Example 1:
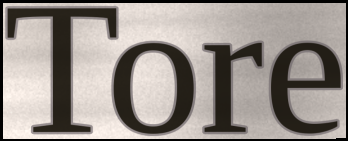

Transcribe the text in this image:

Tore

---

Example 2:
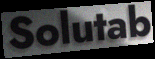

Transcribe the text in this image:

Solutab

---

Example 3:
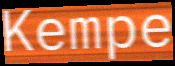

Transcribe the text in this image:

Kempe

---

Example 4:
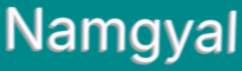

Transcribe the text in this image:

Namgyal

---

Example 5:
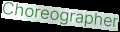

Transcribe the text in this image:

Choreographer